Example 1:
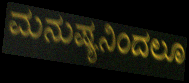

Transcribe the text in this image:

ಮನುಷ್ಯನಿಂದಲೂ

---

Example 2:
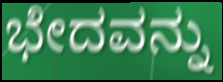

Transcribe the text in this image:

ಭೇದವನ್ನು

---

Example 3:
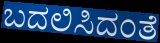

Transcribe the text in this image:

ಬದಲಿಸಿದಂತೆ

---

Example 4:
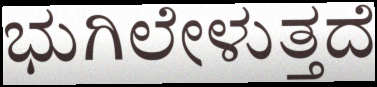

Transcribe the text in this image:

ಭುಗಿಲೇಳುತ್ತದೆ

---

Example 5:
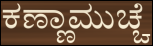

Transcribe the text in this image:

ಕಣ್ಣಾಮುಚ್ಚೆ